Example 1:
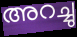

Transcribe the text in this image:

അറച്ചു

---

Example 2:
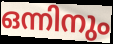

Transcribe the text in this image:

ഒന്നിനും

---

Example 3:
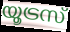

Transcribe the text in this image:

യൂട്രസ്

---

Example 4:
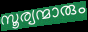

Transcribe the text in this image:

സൂര്യന്മാരും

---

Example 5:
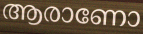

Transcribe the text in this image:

ആരാണോ